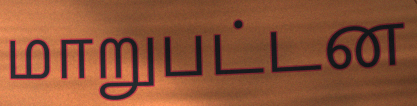
மாறுபட்டன